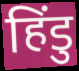
हिंडु